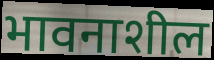
भावनाशील